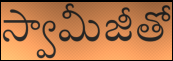
స్వామీజీతో